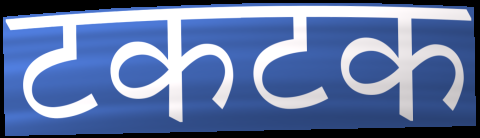
टकटक